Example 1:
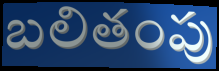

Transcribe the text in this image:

బలితంపు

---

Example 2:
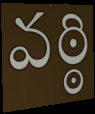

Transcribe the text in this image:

వఠ్ఠి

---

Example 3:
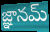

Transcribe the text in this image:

జ్ఞానమ్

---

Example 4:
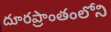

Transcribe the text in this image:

దూరప్రాంతంలోని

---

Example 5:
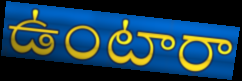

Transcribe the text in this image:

ఉంటారా